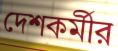
দেশকর্মীর